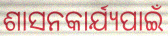
ଶାସନକାର୍ଯ୍ୟପାଇଁ